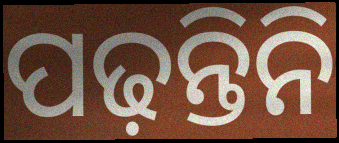
ପଢ଼ନ୍ତିନି